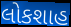
લોકશાહ